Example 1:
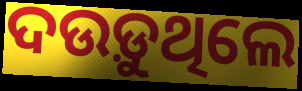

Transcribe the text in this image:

ଦଉଡ଼ୁଥିଲେ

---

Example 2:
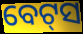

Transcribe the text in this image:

ବେଟ୍‍ସ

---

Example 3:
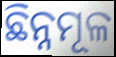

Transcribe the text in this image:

ଛିନ୍ନମୂଳ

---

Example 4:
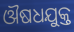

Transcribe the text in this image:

ଔଷଧଯୁକ୍ତ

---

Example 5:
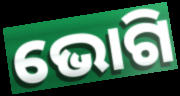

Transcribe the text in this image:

ଭୋଗି